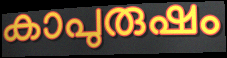
കാപുരുഷം